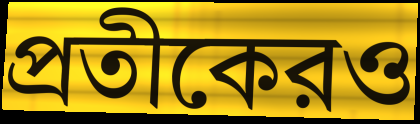
প্রতীকেরও